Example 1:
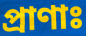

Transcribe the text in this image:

প্রাণাঃ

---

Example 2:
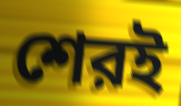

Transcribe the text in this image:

শেরই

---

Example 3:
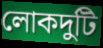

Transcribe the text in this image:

লোকদুটি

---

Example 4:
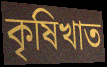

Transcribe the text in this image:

কৃষিখাত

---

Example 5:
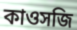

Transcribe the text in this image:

কাওসজি